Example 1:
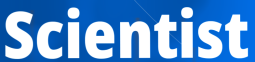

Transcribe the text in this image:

Scientist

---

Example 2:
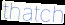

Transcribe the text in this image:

thatch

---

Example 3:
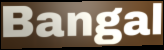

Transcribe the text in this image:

Bangal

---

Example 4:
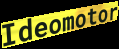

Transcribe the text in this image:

Ideomotor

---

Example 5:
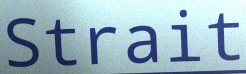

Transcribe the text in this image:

Strait